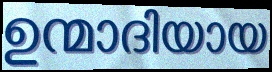
ഉന്മാദിയായ